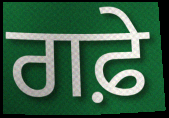
ਗਫ਼ੇ